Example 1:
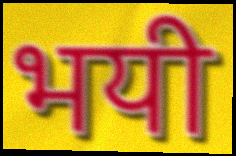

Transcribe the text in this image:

भयी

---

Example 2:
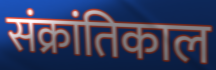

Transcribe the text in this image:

संक्रांतिकाल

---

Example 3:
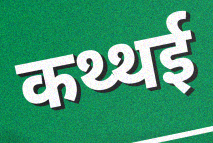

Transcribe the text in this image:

कथ्थई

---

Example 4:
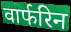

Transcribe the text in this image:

वार्फरिन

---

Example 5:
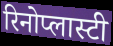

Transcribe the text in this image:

रिनोप्लास्टी